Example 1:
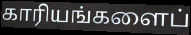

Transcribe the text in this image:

காரியங்களைப்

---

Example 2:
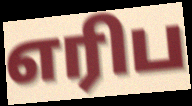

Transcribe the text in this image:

எரிப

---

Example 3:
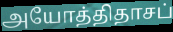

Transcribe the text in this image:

அயோத்திதாசப்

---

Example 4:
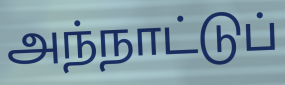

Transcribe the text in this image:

அந்நாட்டுப்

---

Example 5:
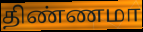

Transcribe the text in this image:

திண்ணமா